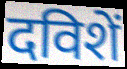
दविशें